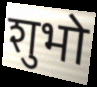
शुभो